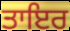
ਤਾਇਰ